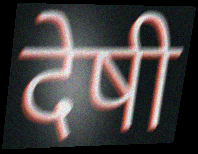
देषी